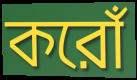
করোঁ